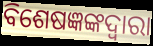
ବିଶେଷଜ୍ଞଙ୍କଦ୍ୱାରା